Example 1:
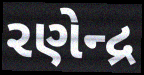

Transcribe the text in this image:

રણેન્દ્ર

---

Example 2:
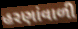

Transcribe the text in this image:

હરણાંવાળી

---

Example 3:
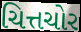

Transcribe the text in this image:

ચિત્તચોર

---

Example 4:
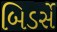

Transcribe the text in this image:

બિડર્સે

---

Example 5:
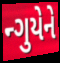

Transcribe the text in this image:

ન્ગુયેને